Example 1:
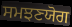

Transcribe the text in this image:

ਸਮਝਣਯੋਗ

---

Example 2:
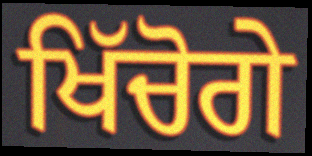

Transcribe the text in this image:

ਖਿੱਚੋਗੇ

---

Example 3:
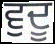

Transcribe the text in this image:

ਵੁਦੂ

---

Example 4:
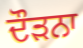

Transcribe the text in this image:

ਦੌੜਨਾ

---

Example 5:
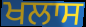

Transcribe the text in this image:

ਖਲਾਸ